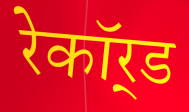
रेकॉर्ड